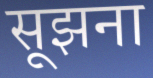
सूझना